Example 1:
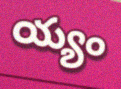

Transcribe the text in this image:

య్యం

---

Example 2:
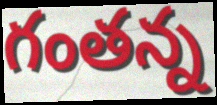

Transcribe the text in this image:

గంతన్న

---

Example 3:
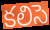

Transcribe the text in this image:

కలిసె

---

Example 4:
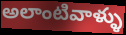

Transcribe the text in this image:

అలాంటివాళ్ళు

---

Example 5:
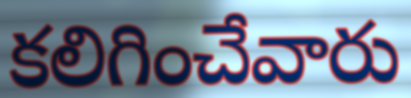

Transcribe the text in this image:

కలిగించేవారు